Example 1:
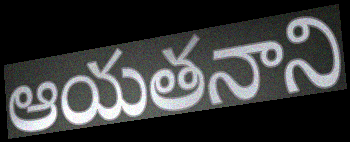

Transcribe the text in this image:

ఆయతనాని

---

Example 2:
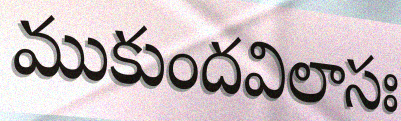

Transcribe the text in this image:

ముకుందవిలాసః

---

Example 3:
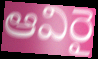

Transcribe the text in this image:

ఆవిరై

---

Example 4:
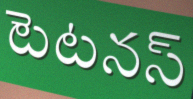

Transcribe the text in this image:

టెటనస్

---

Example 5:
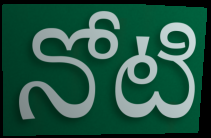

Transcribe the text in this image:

నోటి